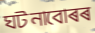
ঘটনাবোৰৰ